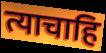
त्याचाहि